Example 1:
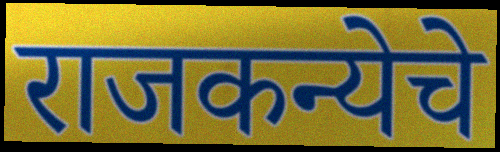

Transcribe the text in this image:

राजकन्येचे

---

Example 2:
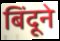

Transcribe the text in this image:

बिंदूने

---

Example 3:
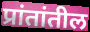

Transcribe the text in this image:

प्रांतांतील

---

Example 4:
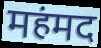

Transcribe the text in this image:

महंमद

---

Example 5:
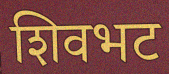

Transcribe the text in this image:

शिवभट